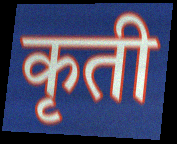
कृती